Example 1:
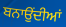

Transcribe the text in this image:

ਬਨਾਉਂਦੀਆਂ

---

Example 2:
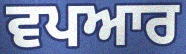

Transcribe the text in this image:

ਵਪਆਰ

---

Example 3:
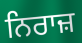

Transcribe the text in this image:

ਨਿਰਾਜ਼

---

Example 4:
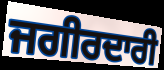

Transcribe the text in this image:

ਜਗੀਰਦਾਰੀ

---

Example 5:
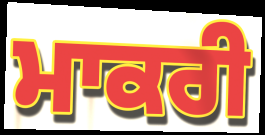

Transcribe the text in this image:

ਮਾਕਰੀ